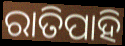
ରାତିପାହି